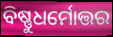
ବିଷ୍ଣୁଧର୍ମୋତ୍ତର